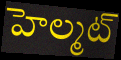
హెల్మట్